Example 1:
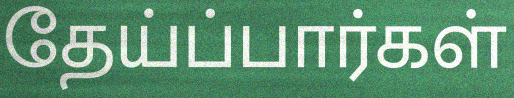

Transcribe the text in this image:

தேய்ப்பார்கள்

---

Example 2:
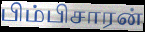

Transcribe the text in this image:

பிம்பிசாரன்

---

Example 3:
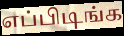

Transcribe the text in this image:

எப்பிடிங்க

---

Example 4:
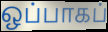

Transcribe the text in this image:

ஒப்பாகப்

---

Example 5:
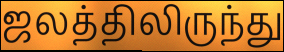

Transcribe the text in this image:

ஜலத்திலிருந்து